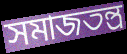
সমাজতন্ত্ৰ